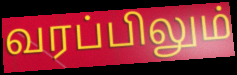
வரப்பிலும்